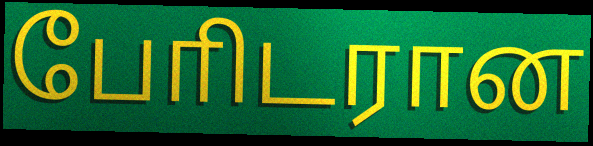
பேரிடரான